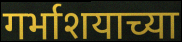
गर्भाशयाच्या